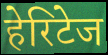
हेरिटेज